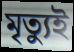
মৃত্যুই